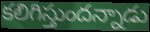
కలిగిస్తుందన్నాడు